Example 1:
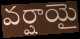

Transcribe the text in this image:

వర్షాయై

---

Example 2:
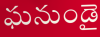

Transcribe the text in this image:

ఘనుండై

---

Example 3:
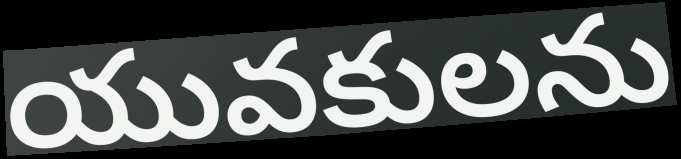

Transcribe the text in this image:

యువకులను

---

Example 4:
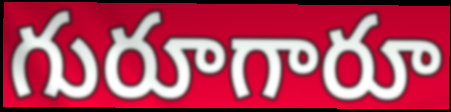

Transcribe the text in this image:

గురూగారూ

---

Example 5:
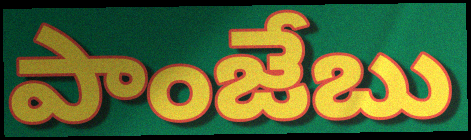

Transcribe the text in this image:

పాంజేబు